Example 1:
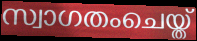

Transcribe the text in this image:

സ്വാഗതംചെയ്ത്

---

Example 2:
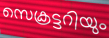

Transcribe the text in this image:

സെക്രട്ടറിയും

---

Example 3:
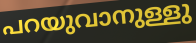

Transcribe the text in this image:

പറയുവാനുള്ളു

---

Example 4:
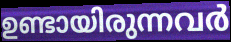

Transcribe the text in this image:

ഉണ്ടായിരുന്നവർ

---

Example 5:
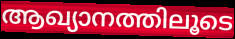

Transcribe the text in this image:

ആഖ്യാനത്തിലൂടെ